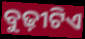
ବୁଢ଼ୀଟିଏ